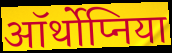
ऑर्थोप्निया